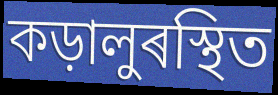
কড়ালুৰস্থিত